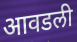
आवडली